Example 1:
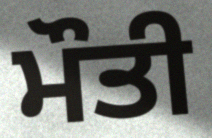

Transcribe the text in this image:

ਮੌਤੀ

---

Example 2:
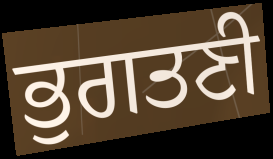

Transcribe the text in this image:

ਭੁਗਤਣੀ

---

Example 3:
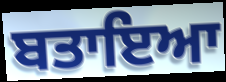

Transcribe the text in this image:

ਬਤਾਇਆ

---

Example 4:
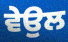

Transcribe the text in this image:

ਵੇਉਲ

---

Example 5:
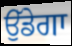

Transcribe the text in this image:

ਉੱਡੇਗਾ